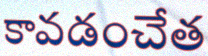
కావడంచేత